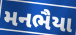
મનભૈયા